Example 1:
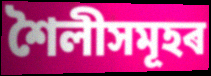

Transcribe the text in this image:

শৈলীসমূহৰ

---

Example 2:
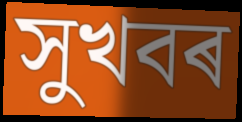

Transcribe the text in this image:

সুখবৰ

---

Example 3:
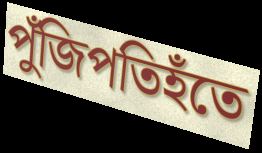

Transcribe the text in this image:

পুঁজিপতিহঁতে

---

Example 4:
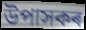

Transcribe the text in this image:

উপাসকৰ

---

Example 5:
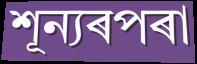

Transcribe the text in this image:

শূন্যৰপৰা